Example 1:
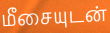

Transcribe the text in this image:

மீசையுடன்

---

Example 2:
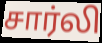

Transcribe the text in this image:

சார்லி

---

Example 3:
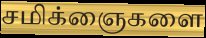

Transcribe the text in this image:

சமிக்ஞைகளை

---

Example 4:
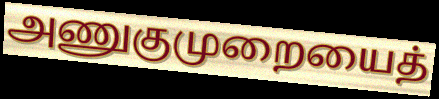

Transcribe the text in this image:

அணுகுமுறையைத்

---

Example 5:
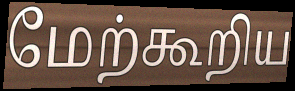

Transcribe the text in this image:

மேற்கூறிய